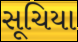
સૂચિયા